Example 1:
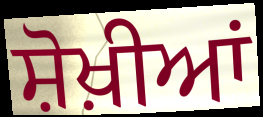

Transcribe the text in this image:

ਸ਼ੋਖ਼ੀਆਂ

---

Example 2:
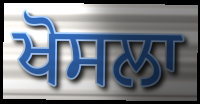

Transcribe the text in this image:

ਖੋਸਲਾ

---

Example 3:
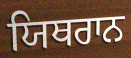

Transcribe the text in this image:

ਯਿਥਰਾਨ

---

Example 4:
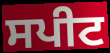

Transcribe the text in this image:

ਸਪੀਟ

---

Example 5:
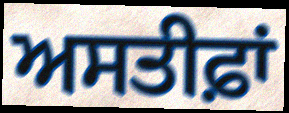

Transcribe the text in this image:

ਅਸਤੀਫ਼ਾਂ